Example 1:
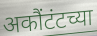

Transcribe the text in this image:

अकौंटंटच्या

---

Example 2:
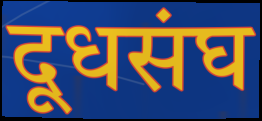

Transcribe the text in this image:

दूधसंघ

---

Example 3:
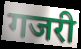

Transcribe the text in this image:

गजरी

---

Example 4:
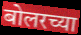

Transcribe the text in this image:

बोलरच्या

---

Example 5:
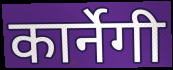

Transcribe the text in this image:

कार्नेगी